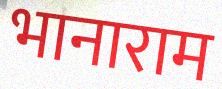
भानाराम